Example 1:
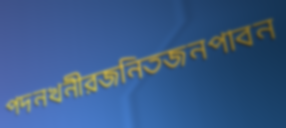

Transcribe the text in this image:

পদনখনীরজনিতজনপাবন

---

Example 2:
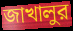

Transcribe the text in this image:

জাখালুর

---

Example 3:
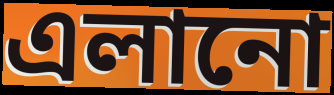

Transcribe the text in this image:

এলানো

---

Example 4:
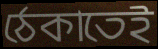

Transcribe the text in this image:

ঠেকাতেই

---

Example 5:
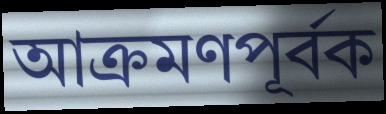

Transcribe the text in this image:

আক্রমণপূর্বক